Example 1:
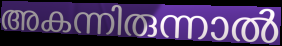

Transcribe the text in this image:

അകന്നിരുന്നാൽ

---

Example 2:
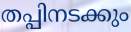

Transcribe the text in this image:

തപ്പിനടക്കും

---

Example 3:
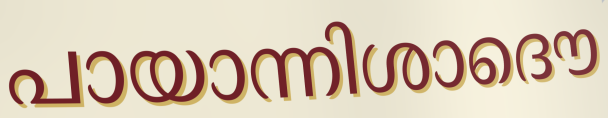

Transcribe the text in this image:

പായാന്നിശാദൌ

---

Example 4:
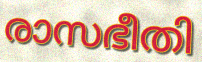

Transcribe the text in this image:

രാസഭീതി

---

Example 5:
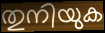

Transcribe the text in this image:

തുനിയുക